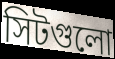
সিটগুলো